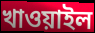
খাওয়াইল